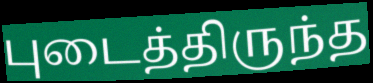
புடைத்திருந்த